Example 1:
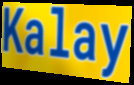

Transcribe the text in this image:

Kalay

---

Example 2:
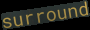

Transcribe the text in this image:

surround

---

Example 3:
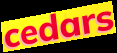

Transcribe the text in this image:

cedars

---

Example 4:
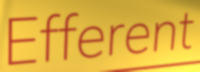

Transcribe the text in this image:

Efferent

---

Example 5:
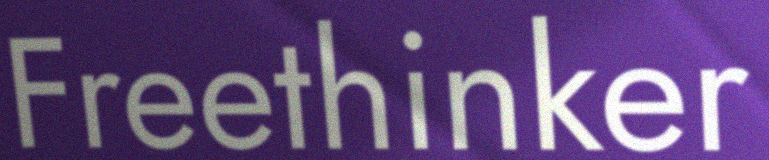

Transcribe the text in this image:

Freethinker